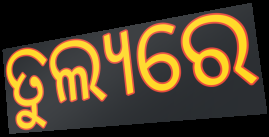
ତୁଲ୍ୟରେ